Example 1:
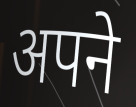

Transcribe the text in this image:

अपने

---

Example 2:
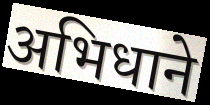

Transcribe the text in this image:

अभिधाने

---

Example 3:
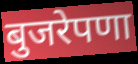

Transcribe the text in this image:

बुजरेपणा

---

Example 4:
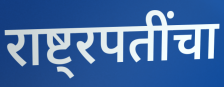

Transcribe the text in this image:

राष्ट्रपतींचा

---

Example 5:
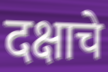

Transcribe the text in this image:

दक्षाचे